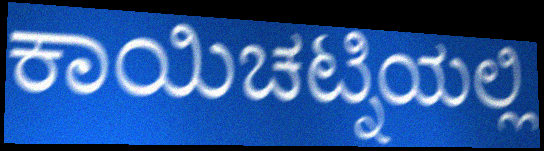
ಕಾಯಿಚಟ್ನಿಯಲ್ಲಿ